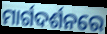
ମାର୍ଗଦର୍ଶନରେ